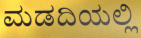
ಮಡದಿಯಲ್ಲಿ